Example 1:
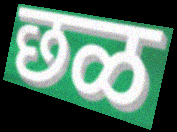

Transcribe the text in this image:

छळ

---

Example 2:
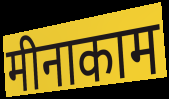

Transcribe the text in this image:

मीनाकाम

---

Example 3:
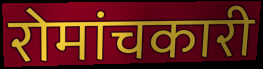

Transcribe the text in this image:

रोमांचकारी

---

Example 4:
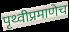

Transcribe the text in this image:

पृथ्वीप्रमाणेच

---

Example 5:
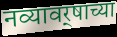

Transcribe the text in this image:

नव्यावर्षाच्या